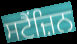
ਸਟੈਂਜ਼ਿਨ